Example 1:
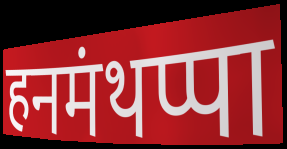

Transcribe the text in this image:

हनमंथप्पा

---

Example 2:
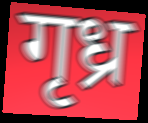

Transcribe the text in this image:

गृध्र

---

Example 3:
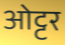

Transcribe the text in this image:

ओट्टर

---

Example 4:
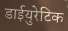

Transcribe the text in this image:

डाईयुरेटिक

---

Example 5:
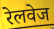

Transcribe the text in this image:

रेलवेज